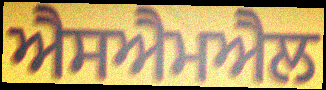
ਐਸਐਮਐਲ